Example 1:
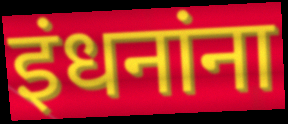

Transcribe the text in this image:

इंधनांना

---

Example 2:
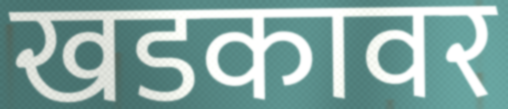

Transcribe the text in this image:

खडकावर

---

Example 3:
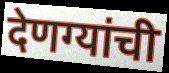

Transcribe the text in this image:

देणग्यांची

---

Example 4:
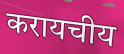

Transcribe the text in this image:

करायचीय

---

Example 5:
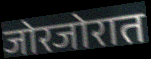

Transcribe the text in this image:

जोरजोरात